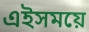
এইসময়ে